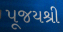
પૂજયશ્રી